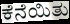
ಕೆನೆಯಿತು